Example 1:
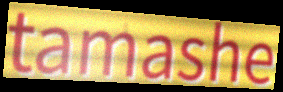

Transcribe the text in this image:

tamashe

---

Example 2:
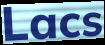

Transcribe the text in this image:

Lacs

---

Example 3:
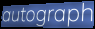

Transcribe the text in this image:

autograph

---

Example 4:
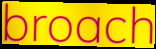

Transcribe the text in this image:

broach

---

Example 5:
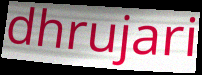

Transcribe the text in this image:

dhrujari